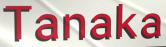
Tanaka